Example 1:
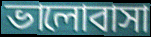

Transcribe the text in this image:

ভালোবাসা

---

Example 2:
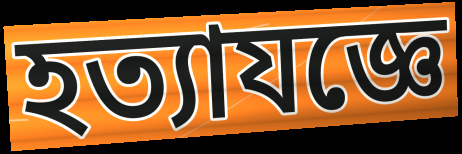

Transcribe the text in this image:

হত্যাযজ্ঞে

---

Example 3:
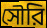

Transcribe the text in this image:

সৌরি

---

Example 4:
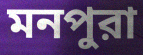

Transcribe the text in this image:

মনপুরা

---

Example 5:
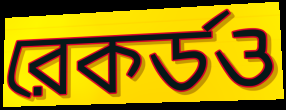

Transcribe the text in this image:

রেকর্ডও